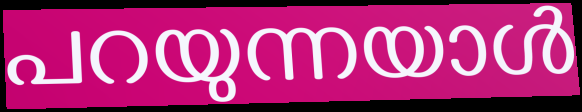
പറയുന്നയാൾ